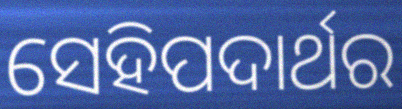
ସେହିପଦାର୍ଥର